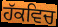
ਹੱਕਵਿਚ